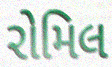
રોમિલ